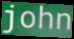
john